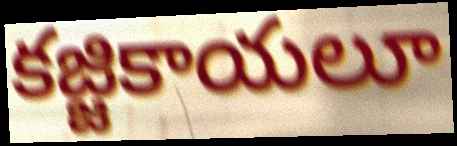
కజ్జికాయలూ